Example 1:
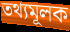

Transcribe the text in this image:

তথ্যমূলক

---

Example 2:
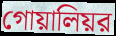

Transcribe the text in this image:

গোয়ালিয়র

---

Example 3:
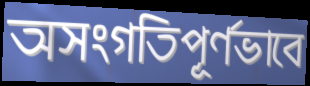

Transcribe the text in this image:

অসংগতিপূর্ণভাবে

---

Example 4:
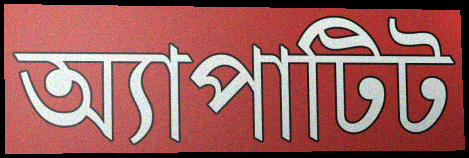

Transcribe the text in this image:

অ্যাপাটিট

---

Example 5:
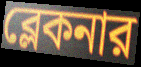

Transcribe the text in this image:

ব্লেকনার